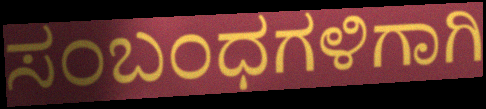
ಸಂಬಂಧಗಳಿಗಾಗಿ